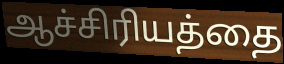
ஆச்சிரியத்தை